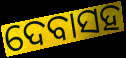
ଦେବାସହ